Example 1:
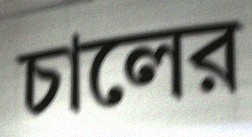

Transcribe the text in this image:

চালের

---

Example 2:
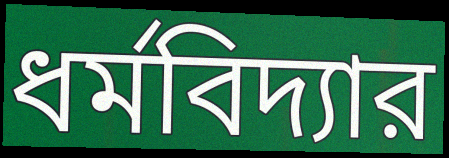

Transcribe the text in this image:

ধর্মবিদ্যার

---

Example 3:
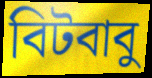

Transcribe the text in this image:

বিটবাবু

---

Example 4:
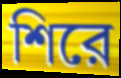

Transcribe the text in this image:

শিরে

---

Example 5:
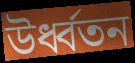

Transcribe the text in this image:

উর্ধ্বতন